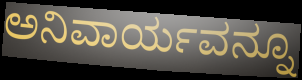
ಅನಿವಾರ್ಯವನ್ನೂ